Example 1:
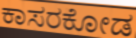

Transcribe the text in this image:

ಕಾಸರಕೋಡ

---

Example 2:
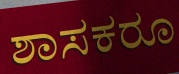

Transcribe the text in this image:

ಶಾಸಕರೂ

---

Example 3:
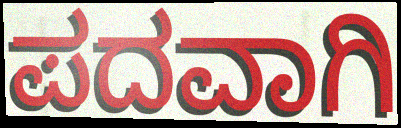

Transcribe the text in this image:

ಪದವಾಗಿ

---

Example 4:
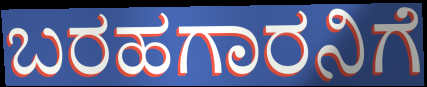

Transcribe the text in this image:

ಬರಹಗಾರನಿಗೆ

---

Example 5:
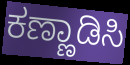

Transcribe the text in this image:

ಕಣ್ಣಾಡಿಸಿ